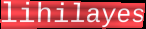
lihilayes